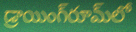
డ్రాయింగ్‌రూమ్‌లో